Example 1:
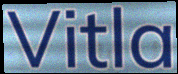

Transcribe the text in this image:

Vitla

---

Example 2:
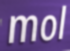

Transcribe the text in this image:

mol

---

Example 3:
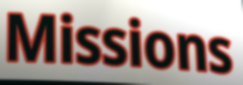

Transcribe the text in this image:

Missions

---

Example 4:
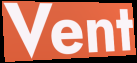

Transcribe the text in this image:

Vent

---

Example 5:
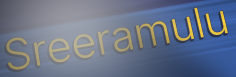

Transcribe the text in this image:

Sreeramulu